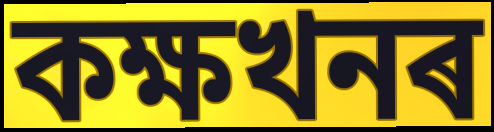
কক্ষখনৰ